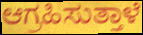
ಆಗ್ರಹಿಸುತ್ತಾಳೆ